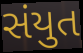
સંયુત